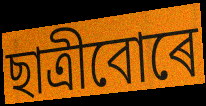
ছাত্ৰীবোৰে